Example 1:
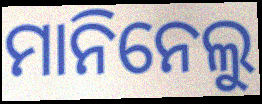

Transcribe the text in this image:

ମାନିନେଲୁ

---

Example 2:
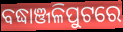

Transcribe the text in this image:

ବଦ୍ଧାଞ୍ଜଳିପୁଟରେ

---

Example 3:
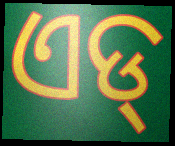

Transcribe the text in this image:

ଏଡ୍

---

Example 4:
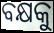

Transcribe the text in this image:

ବକ୍ଷକୁ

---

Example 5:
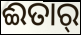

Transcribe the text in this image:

ଈତାର୍